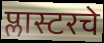
प्लास्टरचे